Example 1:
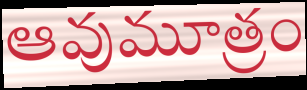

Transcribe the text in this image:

ఆవుమూత్రం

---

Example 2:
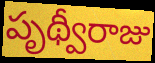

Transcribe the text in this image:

పృథ్వీరాజు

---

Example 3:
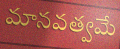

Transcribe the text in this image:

మానవత్వమే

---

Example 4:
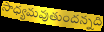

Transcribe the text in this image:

సాధ్యమవుతుందన్నది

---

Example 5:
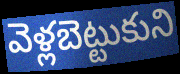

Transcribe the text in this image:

వెళ్లబెట్టుకుని